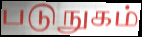
படுநுகம்